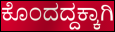
ಕೊಂದದ್ದಕ್ಕಾಗಿ